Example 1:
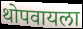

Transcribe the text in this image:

थोपवायला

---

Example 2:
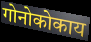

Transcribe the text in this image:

गोनोकोकाय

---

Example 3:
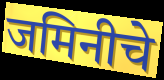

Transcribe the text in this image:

जमिनीचे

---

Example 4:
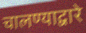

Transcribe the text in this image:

चालण्याद्वारे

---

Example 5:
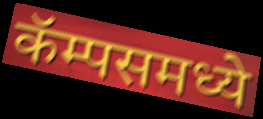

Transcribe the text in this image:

कॅम्पसमध्ये